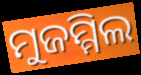
ମୁଜମ୍ମିଲ